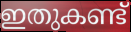
ഇതുകണ്ട്